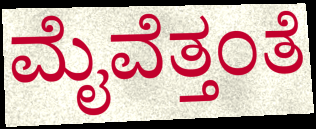
ಮೈವೆತ್ತಂತೆ